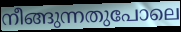
നീങ്ങുന്നതുപോലെ